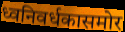
ध्वनिवर्धकासमोर